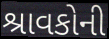
શ્રાવકોની